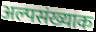
अल्पसंख्याक